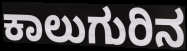
ಕಾಲುಗುರಿನ